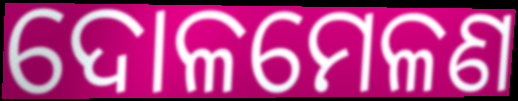
ଦୋଳମେଳଣ